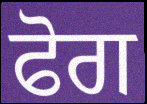
ਫੋਗ